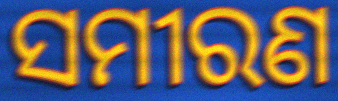
ସମୀରଣ